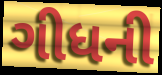
ગીધની